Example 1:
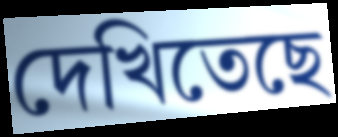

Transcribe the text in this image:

দেখিতেছে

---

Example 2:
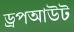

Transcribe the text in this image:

ড্রপআউট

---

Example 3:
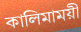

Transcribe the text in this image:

কালিমাময়ী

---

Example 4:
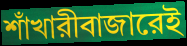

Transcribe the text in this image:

শাঁখারীবাজারেই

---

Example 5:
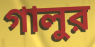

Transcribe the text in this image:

গালুর